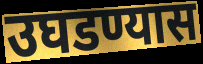
उघडण्यास